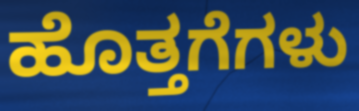
ಹೊತ್ತಗೆಗಳು